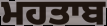
ਮਹਤਾਬ